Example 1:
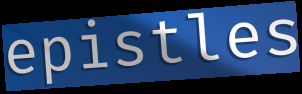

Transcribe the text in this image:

epistles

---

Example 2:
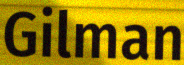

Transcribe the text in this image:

Gilman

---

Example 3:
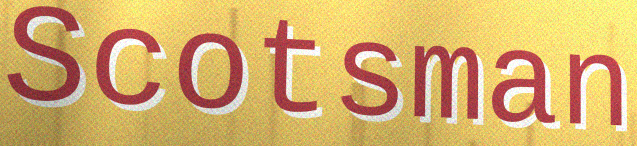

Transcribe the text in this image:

Scotsman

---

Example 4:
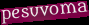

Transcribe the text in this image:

pesuvoma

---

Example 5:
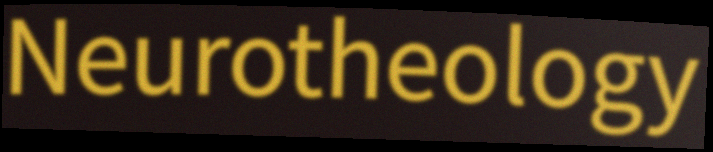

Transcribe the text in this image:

Neurotheology